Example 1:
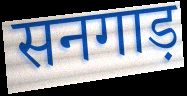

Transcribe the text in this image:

सनगाड़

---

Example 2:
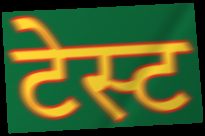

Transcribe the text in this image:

टेस्‍ट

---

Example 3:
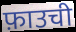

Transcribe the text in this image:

फ़ाउची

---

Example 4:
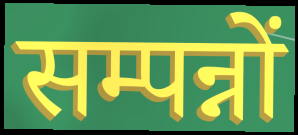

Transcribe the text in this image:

सम्पन्नों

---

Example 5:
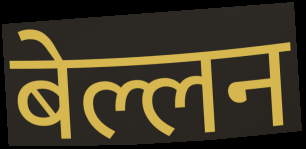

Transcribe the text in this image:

बेल्लन